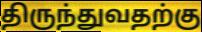
திருந்துவதற்கு